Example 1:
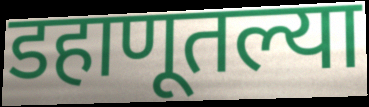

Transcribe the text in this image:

डहाणूतल्या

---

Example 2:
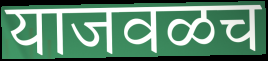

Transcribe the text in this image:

याजवळच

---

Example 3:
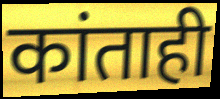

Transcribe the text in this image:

कांताही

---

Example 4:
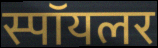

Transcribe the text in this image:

स्पॉयलर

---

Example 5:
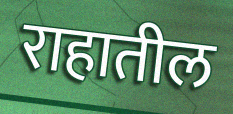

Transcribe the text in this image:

राहातील